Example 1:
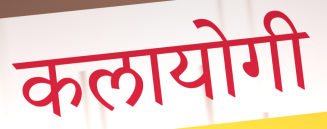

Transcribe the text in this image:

कलायोगी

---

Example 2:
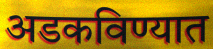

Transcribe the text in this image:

अडकविण्यात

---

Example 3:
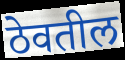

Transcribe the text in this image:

ठेवतील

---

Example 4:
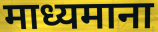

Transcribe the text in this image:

माध्यमाना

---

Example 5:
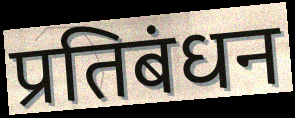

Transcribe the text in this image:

प्रतिबंधन